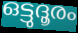
ഒട്ടുദൂരം